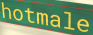
hotmale